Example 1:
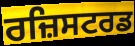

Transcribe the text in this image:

ਰਜ਼ਿਸਟਰਡ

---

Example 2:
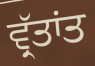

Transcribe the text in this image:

ਵ੍ਰੱਤਾਂਤ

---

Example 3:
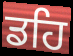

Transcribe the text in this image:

ਡਹਿ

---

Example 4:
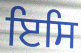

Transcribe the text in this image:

ਇਸਿ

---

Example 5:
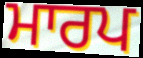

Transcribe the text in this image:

ਮਾਰਪ